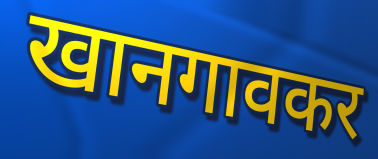
खानगावकर